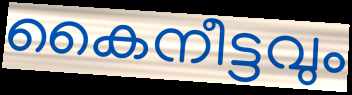
കൈനീട്ടവും